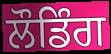
ਲੌਡਿੰਗ